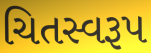
ચિતસ્વરૂપ